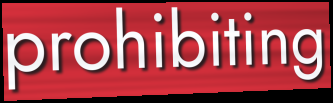
prohibiting